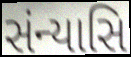
સંન્યાસિ